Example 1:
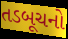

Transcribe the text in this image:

તડબૂચનો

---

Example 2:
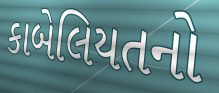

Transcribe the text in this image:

કાબેલિયતનો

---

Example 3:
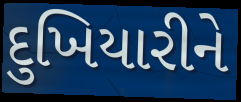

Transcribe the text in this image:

દુખિયારીને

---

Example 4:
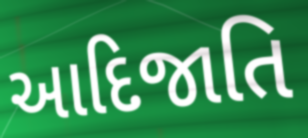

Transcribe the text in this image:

આદિજાતિ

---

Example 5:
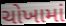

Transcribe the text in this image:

ચોખામાં